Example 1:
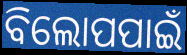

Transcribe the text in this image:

ବିଲୋପପାଇଁ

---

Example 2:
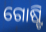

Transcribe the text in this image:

ଗୋଷ୍ଟି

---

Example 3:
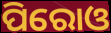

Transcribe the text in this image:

ପିରୋଓ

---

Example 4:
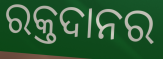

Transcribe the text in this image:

ରକ୍ତଦାନର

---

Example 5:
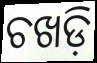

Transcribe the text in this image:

ଚଖଡ଼ି